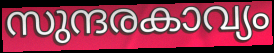
സുന്ദരകാവ്യം